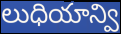
లుధియాన్వి